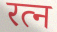
रत्न